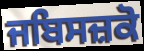
ਜਬਿਸਜ਼ਕੋ